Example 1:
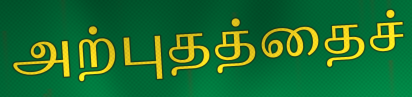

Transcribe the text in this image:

அற்புதத்தைச்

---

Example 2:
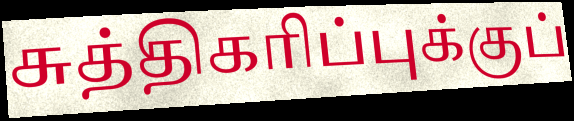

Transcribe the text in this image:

சுத்திகரிப்புக்குப்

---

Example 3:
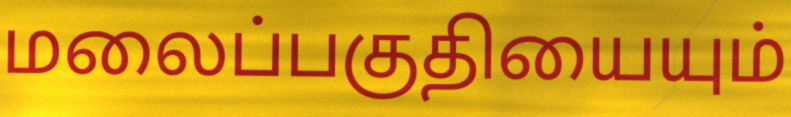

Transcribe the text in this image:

மலைப்பகுதியையும்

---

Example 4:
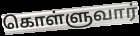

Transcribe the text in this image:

கொள்ளுவார்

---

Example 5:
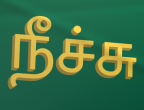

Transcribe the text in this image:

நீச்சு